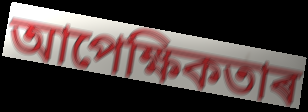
আপেক্ষিকতাৰ